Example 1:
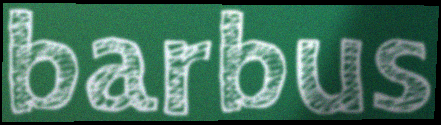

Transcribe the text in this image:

barbus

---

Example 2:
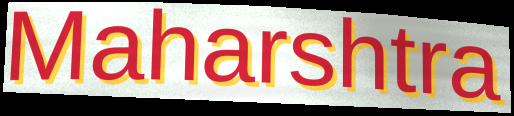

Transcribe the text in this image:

Maharshtra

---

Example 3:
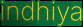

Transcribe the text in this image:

indhiya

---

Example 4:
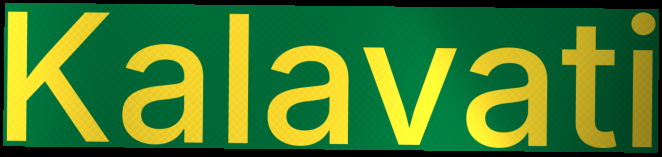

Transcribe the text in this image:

Kalavati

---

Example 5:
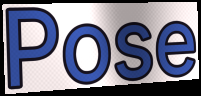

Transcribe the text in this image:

Pose